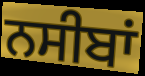
ਨਸੀਬਾਂ